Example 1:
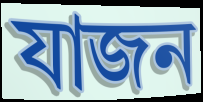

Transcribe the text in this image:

যাজন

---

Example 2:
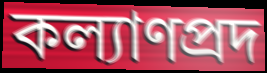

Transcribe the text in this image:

কল্যাণপ্রদ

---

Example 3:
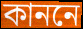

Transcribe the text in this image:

কাননে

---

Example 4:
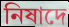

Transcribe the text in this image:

নিষাদে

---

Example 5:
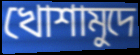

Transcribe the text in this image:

খোশামুদে